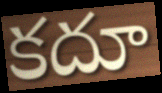
కదూ